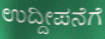
ಉದ್ದೀಪನೆಗೆ